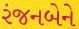
રંજનબેને